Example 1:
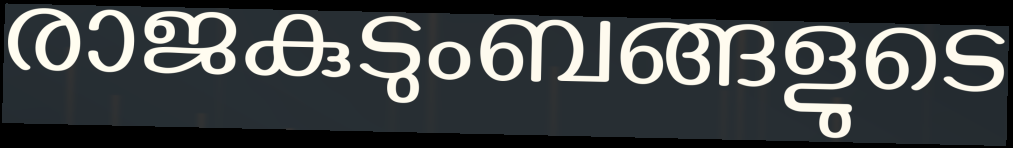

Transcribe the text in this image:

രാജകുടുംബങ്ങളുടെ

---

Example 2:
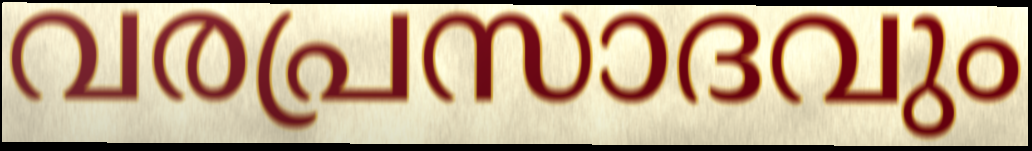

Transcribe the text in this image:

വരപ്രസാദവും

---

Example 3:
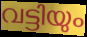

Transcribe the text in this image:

വട്ടിയും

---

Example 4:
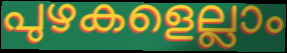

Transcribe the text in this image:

പുഴകളെല്ലാം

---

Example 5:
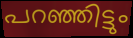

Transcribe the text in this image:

പറഞ്ഞിട്ടും